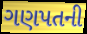
ગણપતની